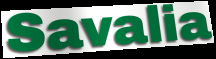
Savalia